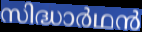
സിദ്ധാർഥൻ